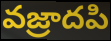
వజ్రాదపి